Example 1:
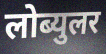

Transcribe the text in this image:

लोब्युलर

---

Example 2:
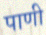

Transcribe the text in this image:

पाणी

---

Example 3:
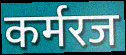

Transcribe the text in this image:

कर्मरज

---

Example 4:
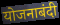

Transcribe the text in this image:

योजनाबंदी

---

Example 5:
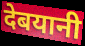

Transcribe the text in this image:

देबयानी